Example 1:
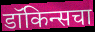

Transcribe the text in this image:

डॉकिन्सचा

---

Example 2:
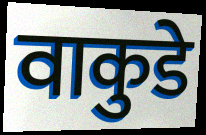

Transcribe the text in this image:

वाकुडे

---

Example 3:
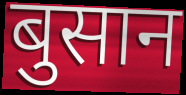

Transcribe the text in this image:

बुसान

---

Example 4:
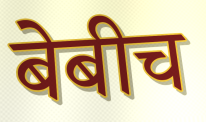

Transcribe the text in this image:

बेबीच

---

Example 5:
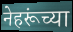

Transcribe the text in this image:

नेहरूंच्या